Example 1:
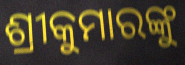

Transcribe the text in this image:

ଶ୍ରୀକୁମାରଙ୍କୁ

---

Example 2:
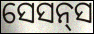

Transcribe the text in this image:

ସେସନ୍‌ସ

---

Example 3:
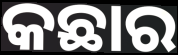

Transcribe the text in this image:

କଛାର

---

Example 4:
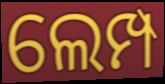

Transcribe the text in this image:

ଲେମ୍ପ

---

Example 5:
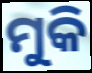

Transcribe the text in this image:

ମୁକି